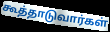
கூத்தாடுவார்கள்